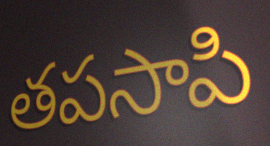
తపసాపి